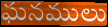
ఘనములు